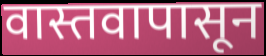
वास्तवापासून